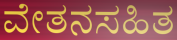
ವೇತನಸಹಿತ